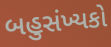
બહુસંખ્યકો